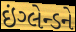
ઇંગ્લેન્ડને